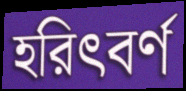
হরিৎবর্ণ